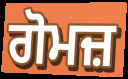
ਗੋਮਜ਼